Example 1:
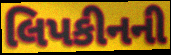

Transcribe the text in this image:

લિપકીનની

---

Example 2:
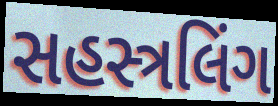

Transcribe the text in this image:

સહસ્ત્રલિંગ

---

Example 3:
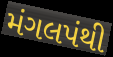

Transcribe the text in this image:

મંગલપંથી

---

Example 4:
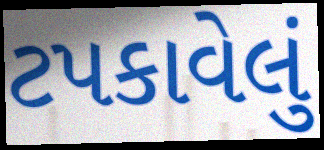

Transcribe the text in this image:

ટપકાવેલું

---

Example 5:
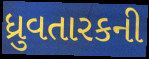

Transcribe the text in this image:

ધ્રુવતારકની